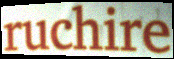
ruchire